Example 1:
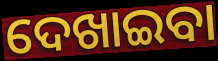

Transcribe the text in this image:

ଦେଖାଇବା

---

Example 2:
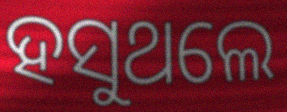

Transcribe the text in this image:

ହସୁଥଲେ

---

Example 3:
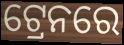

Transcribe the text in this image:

ଟ୍ରେନରେ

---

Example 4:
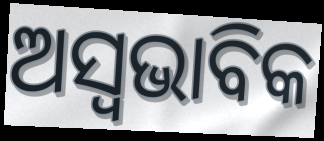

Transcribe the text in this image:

ଅସ୍ୱଭାବିକ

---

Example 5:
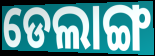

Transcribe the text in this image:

ଡେଲାଙ୍ଗ